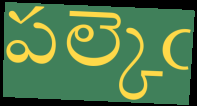
పల్కెఁ